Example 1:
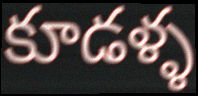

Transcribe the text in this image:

కూడళ్ళ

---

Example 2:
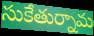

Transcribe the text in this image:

సుకేతుర్నామ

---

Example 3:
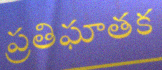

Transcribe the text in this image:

ప్రతిఘాతక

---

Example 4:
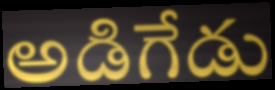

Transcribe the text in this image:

అడిగేడు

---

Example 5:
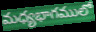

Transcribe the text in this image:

మధ్యభాగములో